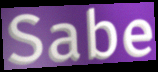
Sabe